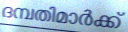
ദമ്പതിമാർക്ക്